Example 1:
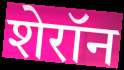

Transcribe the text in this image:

शेरॉन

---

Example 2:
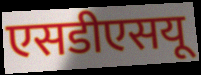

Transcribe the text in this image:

एसडीएसयू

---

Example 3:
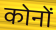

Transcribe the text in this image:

कोनों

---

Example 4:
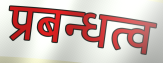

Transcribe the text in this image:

प्रबन्धत्व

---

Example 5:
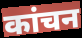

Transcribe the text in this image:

कांचन